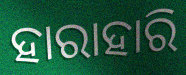
ହାରାହାରି